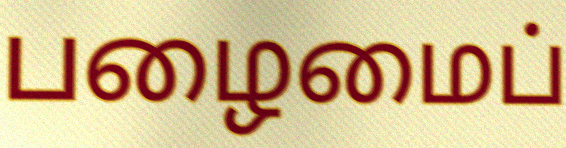
பழைமைப்